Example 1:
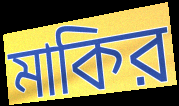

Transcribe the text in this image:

মাকির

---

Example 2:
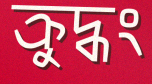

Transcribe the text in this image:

ক্রুদ্ধং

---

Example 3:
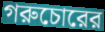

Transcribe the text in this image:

গরুচোরের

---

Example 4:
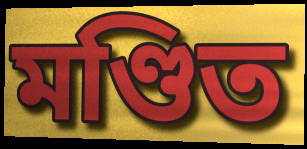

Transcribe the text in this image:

মণ্ডিত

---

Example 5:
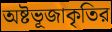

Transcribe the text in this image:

অষ্টভূজাকৃতির